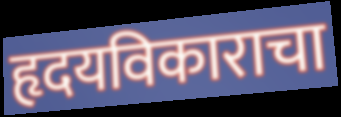
हृदयविकाराचा